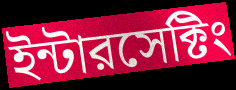
ইন্টারসেক্টিং